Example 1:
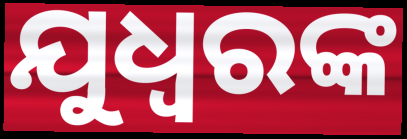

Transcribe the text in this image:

ଯୁଧ୍ଵରଙ୍କ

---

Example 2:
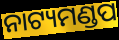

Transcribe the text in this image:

ନାଟ୍ୟମଣ୍ଡପ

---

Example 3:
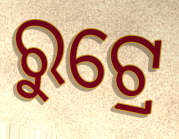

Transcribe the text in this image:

ରୁଟ୍ରେ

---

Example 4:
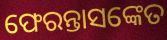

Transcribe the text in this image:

ଫେରନ୍ତାସଙ୍କେତ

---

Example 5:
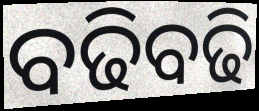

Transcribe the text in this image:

ବଢିବଢି